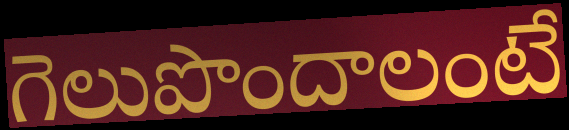
గెలుపొందాలంటే